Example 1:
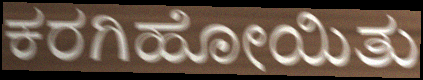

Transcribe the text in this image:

ಕರಗಿಹೋಯಿತು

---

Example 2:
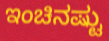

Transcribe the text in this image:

ಇಂಚಿನಷ್ಟು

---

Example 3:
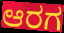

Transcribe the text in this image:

ಆರಗ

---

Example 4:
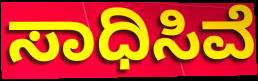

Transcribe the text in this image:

ಸಾಧಿಸಿವೆ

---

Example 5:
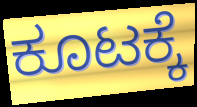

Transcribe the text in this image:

ಕೂಟಕ್ಕೆ